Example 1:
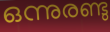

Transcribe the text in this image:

ഒന്നുരണ്ടു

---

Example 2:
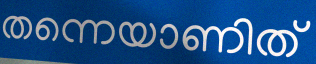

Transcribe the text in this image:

തന്നെയാണിത്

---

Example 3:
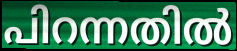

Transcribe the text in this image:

പിറന്നതിൽ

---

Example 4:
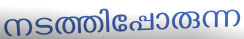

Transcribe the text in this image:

നടത്തിപ്പോരുന്ന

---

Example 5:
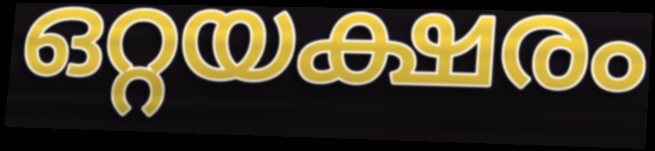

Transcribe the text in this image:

ഒറ്റയക്ഷരം